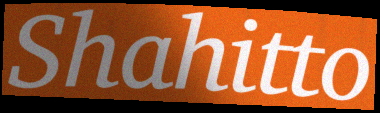
Shahitto